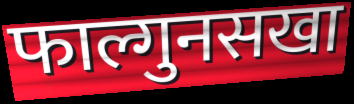
फाल्गुनसखा